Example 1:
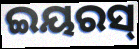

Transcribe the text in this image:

ଇୟରସ୍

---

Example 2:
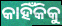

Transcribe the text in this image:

କାହିଁକିକୁ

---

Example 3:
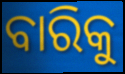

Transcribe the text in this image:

ବାରିକୁ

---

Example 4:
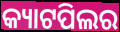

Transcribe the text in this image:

କ୍ୟାଟପିଲର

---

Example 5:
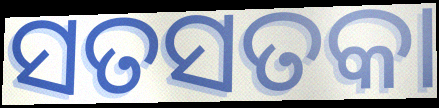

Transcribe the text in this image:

ସତସତକା